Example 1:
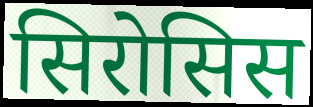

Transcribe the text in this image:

सिरोसिस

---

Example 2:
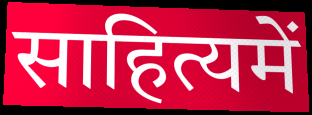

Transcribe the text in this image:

साहित्यमें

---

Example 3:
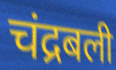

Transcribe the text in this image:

चंद्रबली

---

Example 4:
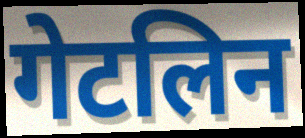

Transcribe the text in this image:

गेटलिन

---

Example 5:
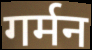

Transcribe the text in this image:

गर्मन